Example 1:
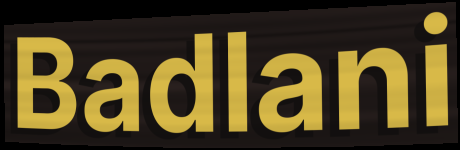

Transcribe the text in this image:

Badlani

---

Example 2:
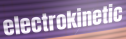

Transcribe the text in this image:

electrokinetic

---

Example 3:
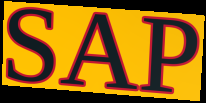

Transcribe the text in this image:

SAP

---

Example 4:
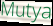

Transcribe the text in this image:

Mutya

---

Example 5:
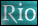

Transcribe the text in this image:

Rio